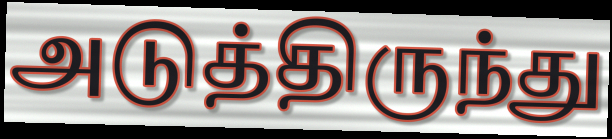
அடுத்திருந்து